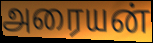
அரையன்